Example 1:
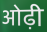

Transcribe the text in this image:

ओढ़ी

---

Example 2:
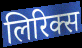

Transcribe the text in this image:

लिरिक्स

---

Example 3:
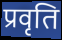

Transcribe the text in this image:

प्रवृति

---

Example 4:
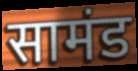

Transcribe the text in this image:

सामंड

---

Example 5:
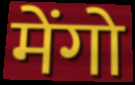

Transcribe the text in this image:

मेंगो